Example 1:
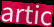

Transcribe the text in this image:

artic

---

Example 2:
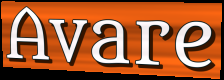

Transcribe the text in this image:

Avare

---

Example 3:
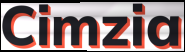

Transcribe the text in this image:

Cimzia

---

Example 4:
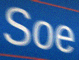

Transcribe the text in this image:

Soe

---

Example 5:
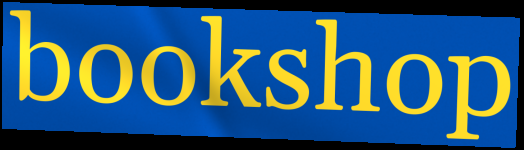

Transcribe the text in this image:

bookshop